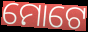
ମୋଟେ